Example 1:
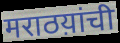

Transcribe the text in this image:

मराठय़ांची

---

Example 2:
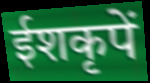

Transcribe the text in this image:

ईशकृपें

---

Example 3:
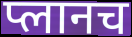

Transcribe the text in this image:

प्लानच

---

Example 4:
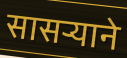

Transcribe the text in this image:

सासऱ्याने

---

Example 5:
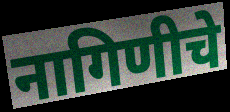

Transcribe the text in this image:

नागिणीचे